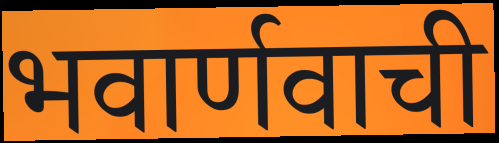
भवार्णवाची